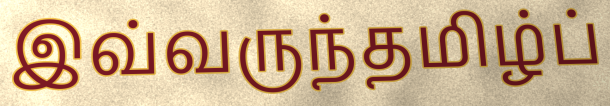
இவ்வருந்தமிழ்ப்